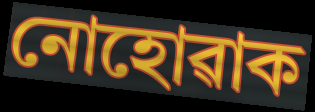
নোহোৱাক